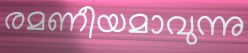
രമണീയമാവുന്നു